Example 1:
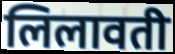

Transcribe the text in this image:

लिलावती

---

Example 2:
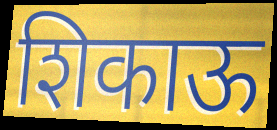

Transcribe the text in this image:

शिकाऊ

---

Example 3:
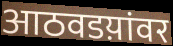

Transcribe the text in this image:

आठवडय़ांवर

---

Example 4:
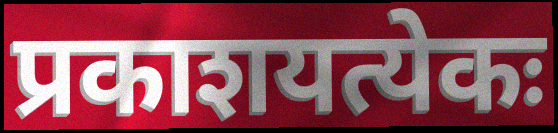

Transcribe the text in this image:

प्रकाशयत्येकः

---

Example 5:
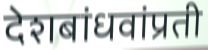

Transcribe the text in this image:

देशबांधवांप्रती